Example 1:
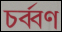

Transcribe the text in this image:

চর্ব্বণ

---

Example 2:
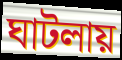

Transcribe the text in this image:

ঘাটলায়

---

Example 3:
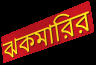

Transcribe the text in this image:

ঝকমারির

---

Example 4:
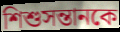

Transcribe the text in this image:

শিশুসন্তানকে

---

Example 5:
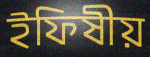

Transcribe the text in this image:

ইফিষীয়